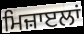
ਮਿਜ਼ਾੲਲਾਂ